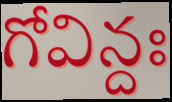
గోవిన్దః